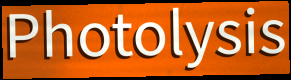
Photolysis